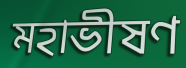
মহাভীষণ